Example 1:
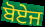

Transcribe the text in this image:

ਬੋਏਜ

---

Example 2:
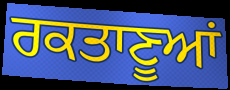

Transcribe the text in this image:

ਰਕਤਾਣੂਆਂ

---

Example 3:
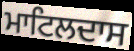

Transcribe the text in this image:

ਮਾਟਿਲਦਾਸ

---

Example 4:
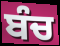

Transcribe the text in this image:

ਬੰਚ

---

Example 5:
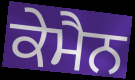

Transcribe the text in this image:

ਕੇਮੈਨ